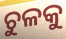
ଚୁଳକୁ